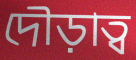
দৌড়াত্ব